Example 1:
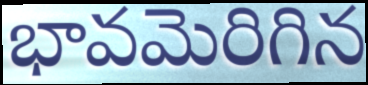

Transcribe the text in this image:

భావమెరిగిన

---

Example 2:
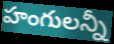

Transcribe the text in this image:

హంగులన్నీ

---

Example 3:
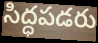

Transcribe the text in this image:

సిద్ధపడరు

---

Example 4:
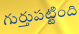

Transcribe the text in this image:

గుర్తుపట్టింది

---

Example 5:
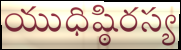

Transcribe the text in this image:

యుధిష్ఠిరస్య